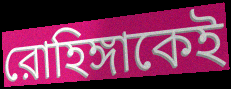
রোহিঙ্গাকেই